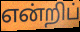
என்றிப்